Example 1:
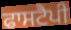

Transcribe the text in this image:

ਫਾਸਟੈਪੀ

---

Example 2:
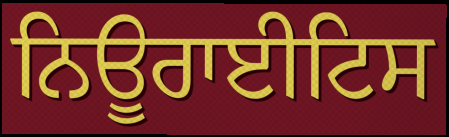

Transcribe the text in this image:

ਨਿਊਰਾਈਟਿਸ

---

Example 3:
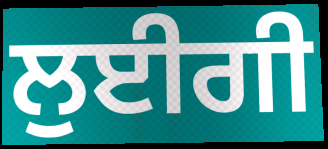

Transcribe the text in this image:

ਲੁਈਗੀ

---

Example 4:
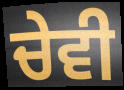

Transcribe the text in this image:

ਚੇਵੀ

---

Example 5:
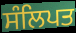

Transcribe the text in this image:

ਸੰਲਿਪਤ